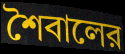
শৈবালের